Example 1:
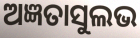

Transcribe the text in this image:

ଅଜ୍ଞତାସୁଲଭ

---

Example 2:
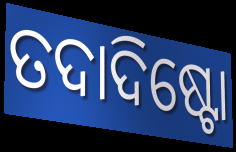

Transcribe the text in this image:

ତଦାଦିଷ୍ଟୋ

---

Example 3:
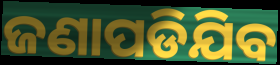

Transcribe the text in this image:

ଜଣାପଡିଯିବ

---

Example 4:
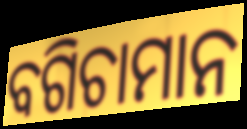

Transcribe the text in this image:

ବଗିଚାମାନ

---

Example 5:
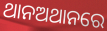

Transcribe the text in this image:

ଥାନଅଥାନରେ